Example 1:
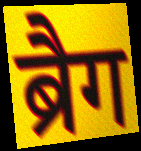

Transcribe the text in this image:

ब्रैग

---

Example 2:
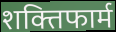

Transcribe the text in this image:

शक्तिफार्म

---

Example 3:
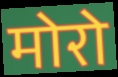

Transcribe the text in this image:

मोरो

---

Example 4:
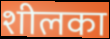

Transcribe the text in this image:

शीलका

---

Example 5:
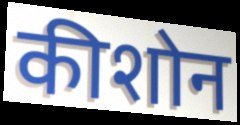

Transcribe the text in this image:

कीशोन